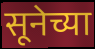
सूनेच्या